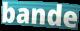
bande